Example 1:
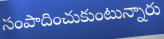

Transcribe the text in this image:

సంపాదించుకుంటున్నారు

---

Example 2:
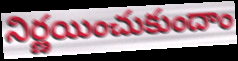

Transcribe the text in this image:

నిర్ణయించుకుందాం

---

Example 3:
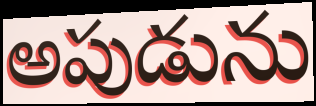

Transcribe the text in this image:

అపుడును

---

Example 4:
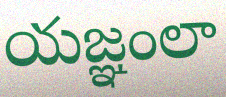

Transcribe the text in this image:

యజ్ఞంలా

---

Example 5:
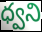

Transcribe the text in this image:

ధ్వని